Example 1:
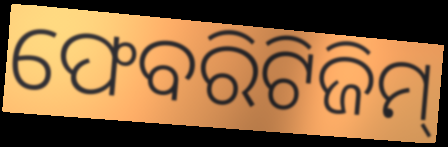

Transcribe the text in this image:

ଫେବରିଟିଜିମ୍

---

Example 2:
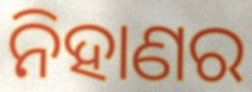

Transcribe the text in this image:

ନିହାଣର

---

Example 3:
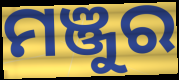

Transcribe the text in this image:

ମଞ୍ଜୁର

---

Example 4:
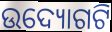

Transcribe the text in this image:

ଉଦ୍ୟୋଗଟି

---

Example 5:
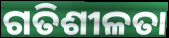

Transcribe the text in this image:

ଗତିଶୀଳତା